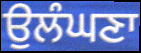
ਉਲੰਘਣਾ